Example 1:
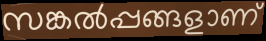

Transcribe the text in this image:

സങ്കൽപ്പങ്ങളാണ്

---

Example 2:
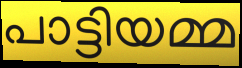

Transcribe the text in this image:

പാട്ടിയമ്മ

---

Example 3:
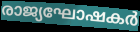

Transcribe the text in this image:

രാജ്യഘോഷകർ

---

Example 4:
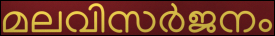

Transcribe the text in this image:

മലവിസർജനം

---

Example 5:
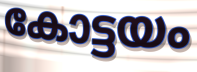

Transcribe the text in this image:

കോട്ടയം